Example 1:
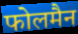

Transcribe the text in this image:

फोलमैन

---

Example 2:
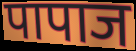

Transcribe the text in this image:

पापाज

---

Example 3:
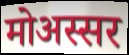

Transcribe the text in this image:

मोअस्सर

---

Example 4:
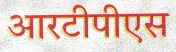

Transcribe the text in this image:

आरटीपीएस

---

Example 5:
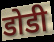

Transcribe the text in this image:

डोडी